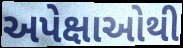
અપેક્ષાઓથી